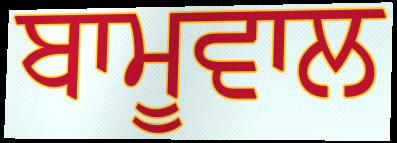
ਬਾਮੂਵਾਲ